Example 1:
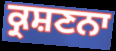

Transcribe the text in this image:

ਕ੍ਰਸ਼ਣਨਾ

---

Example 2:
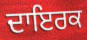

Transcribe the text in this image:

ਦਾਇਰਕ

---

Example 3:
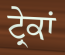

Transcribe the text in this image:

ਟ੍ਰੇਕਾਂ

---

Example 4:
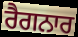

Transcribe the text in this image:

ਰੈਗਨਾਰ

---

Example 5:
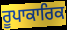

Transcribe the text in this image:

ਰੂਪਾਕਾਰਿਕ